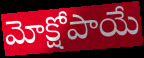
మోక్షోపాయే